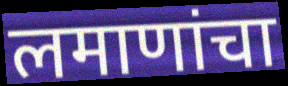
लमाणांचा